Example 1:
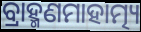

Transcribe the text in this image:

ବ୍ରାହ୍ମଣମାହାତ୍ମ୍ୟ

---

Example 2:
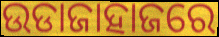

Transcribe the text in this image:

ଉଡାଜାହାଜରେ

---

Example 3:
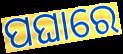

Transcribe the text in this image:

ପଘାରେ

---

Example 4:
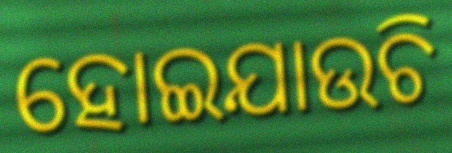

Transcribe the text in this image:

ହୋଇଯାଉଚି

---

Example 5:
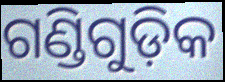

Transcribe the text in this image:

ଗଣ୍ଡିଗୁଡ଼ିକ